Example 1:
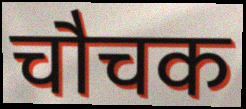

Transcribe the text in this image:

चौचक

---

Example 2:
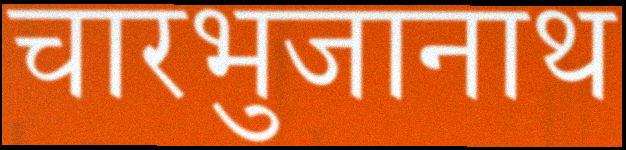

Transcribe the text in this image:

चारभुजानाथ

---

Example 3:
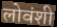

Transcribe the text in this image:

लोवंशी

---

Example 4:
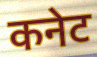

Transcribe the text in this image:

कनेट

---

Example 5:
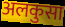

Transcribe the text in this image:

अलकुसा